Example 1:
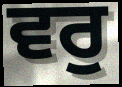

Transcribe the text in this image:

ਵਰੁ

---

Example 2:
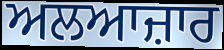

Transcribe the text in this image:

ਅਲਆਜ਼ਾਰ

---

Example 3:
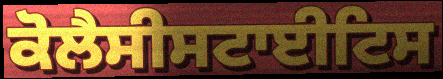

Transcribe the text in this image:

ਕੋਲੈਸੀਸਟਾਈਟਿਸ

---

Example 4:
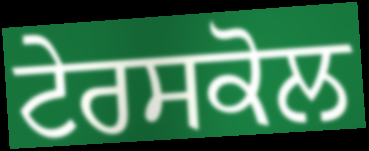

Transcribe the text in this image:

ਟੇਰਸਕੋਲ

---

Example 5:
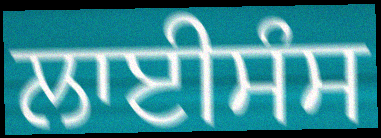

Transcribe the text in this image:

ਲਾਈਸੰਸ